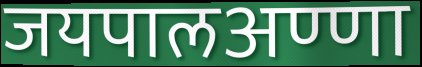
जयपालअण्णा